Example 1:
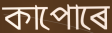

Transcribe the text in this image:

কাপোৰে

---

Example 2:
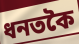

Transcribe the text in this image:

ধনতকৈ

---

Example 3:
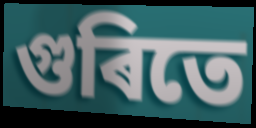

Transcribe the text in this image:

গুৰিতে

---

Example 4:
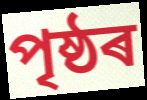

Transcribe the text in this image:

পৃষ্ঠৰ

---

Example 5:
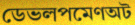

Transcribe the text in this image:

ডেভলপমেণঅট